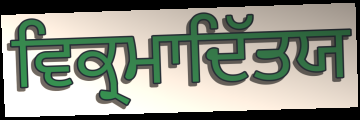
ਵਿਕ੍ਰਮਾਦਿੱਤਯ